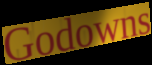
Godowns